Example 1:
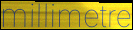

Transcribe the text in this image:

millimetre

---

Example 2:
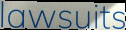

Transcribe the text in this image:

lawsuits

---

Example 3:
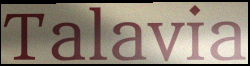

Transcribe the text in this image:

Talavia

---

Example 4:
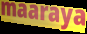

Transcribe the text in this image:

maaraya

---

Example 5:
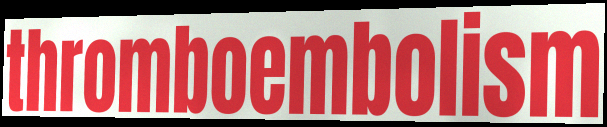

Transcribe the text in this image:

thromboembolism